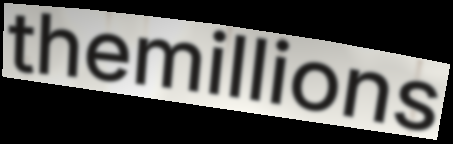
themillions